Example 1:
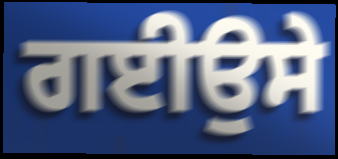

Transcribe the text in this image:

ਗਈਉਸੇ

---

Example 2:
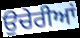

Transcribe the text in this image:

ਉਚੇਰੀਆਂ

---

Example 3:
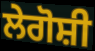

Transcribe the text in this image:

ਲੇਗੋਸ਼ੀ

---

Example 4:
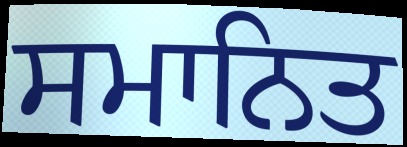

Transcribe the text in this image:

ਸਮਾਨਿਤ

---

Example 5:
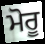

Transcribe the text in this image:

ਮੋਰੂ